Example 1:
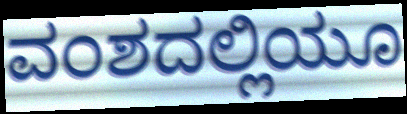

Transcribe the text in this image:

ವಂಶದಲ್ಲಿಯೂ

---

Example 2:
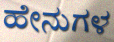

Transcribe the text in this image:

ಹೇನುಗಳ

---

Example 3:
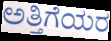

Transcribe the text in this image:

ಅತ್ತಿಗೆಯರ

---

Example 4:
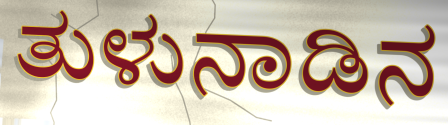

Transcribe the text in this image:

ತುಳುನಾಡಿನ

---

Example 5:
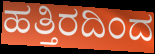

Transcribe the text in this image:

ಹತ್ತಿರದಿಂದ